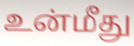
உன்மீது